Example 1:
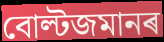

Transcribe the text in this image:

বোল্টজমানৰ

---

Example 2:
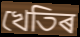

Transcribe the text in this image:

খেতিৰ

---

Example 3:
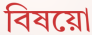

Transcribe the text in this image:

বিষয়ো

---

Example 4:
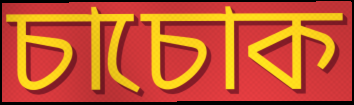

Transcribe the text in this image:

চাচোক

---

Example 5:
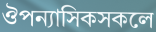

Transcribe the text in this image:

ঔপন্যাসিকসকলে